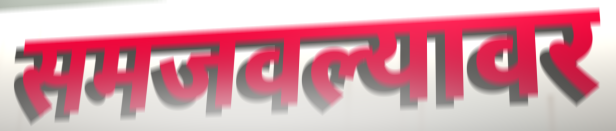
समजवल्यावर